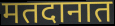
मतदानात